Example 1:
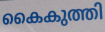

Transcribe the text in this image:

കൈകുത്തി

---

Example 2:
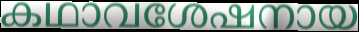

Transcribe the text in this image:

കഥാവശേഷനായ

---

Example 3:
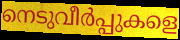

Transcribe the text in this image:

നെടുവീർപ്പുകളെ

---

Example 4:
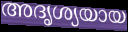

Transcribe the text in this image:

അദൃശ്യയായ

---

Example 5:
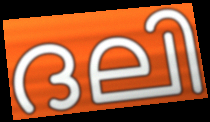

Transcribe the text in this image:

ദലി